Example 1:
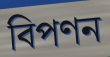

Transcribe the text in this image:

বিপণন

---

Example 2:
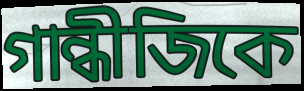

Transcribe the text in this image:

গান্ধীজিকে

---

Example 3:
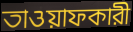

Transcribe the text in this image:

তাওয়াফকারী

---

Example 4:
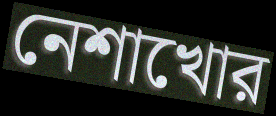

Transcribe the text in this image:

নেশাখোর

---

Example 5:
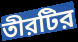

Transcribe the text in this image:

তীরটির